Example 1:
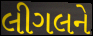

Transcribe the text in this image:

લીગલને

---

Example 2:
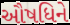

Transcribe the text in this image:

ઔષધિને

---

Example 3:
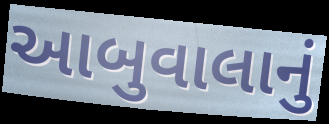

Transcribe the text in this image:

આબુવાલાનું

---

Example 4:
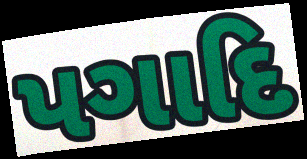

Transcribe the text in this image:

પગાદિ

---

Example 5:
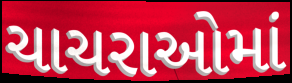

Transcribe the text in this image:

ચાચરાઓમાં